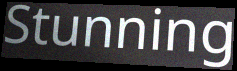
Stunning